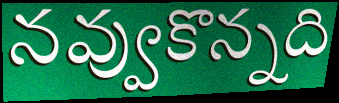
నవ్వుకొన్నది